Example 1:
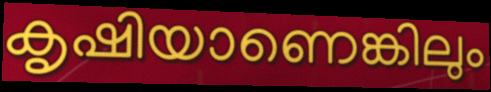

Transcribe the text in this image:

കൃഷിയാണെങ്കിലും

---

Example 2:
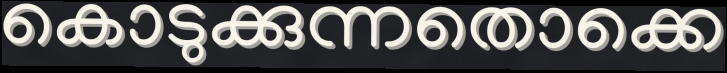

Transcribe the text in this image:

കൊടുക്കുന്നതൊക്കെ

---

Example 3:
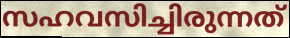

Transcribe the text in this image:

സഹവസിച്ചിരുന്നത്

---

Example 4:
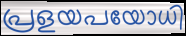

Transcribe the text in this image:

പ്രളയപയോധി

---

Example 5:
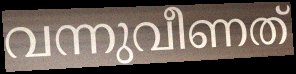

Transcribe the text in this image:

വന്നുവീണത്